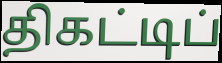
திகட்டிப்